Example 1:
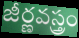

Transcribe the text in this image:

జీర్ణవస్త్రం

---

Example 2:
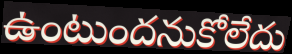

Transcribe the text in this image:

ఉంటుందనుకోలేదు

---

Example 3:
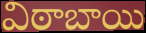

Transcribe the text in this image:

విఠాబాయి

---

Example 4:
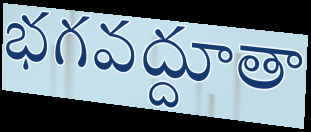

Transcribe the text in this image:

భగవద్దూతా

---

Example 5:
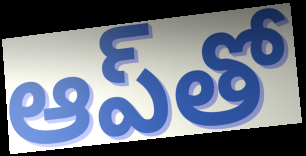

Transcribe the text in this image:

ఆప్‌తో